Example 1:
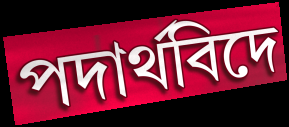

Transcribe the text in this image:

পদাৰ্থবিদে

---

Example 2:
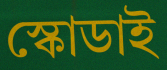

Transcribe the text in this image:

স্কোডাই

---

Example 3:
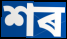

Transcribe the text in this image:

শৰ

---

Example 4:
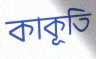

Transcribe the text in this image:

কাকূতি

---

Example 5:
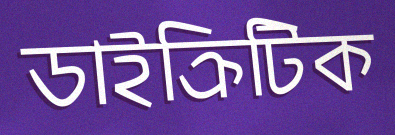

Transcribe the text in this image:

ডাইক্ৰিটিক